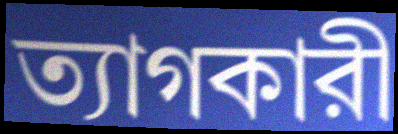
ত্যাগকারী